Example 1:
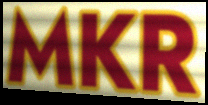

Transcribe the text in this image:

MKR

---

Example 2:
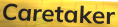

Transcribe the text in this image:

Caretaker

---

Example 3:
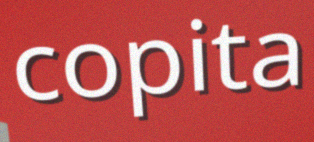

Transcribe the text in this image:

copita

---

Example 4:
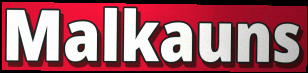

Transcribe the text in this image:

Malkauns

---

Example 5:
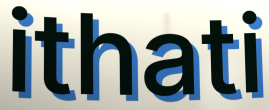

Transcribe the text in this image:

ithati